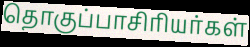
தொகுப்பாசிரியர்கள்